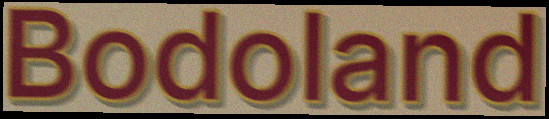
Bodoland